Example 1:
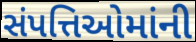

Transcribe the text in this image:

સંપત્તિઓમાંની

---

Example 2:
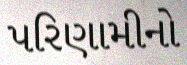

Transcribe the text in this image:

પરિણામીનો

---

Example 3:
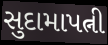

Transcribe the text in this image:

સુદામાપત્ની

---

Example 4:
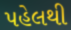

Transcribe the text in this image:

પહેલથી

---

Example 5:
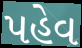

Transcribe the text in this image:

પહેવ